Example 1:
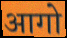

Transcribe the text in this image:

आगो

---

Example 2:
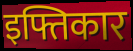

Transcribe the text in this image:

इफ्तिकार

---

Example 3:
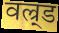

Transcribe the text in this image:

वल्र्ड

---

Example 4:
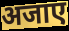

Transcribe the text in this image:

अजाए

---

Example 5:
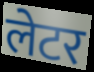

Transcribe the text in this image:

लेटर